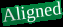
Aligned